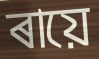
ৰায়ে